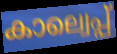
കാല്വെപ്പ്